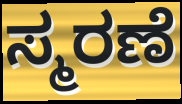
ಸ್ಮರಣೆ